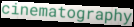
cinematography